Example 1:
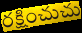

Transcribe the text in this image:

రక్షించుచు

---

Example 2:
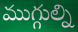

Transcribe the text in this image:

ముగ్గుల్ని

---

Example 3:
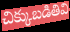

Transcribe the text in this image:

చిక్కుబడితివి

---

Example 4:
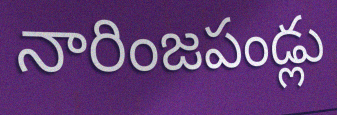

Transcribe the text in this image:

నారింజపండ్లు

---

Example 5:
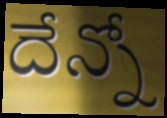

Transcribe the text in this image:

దేన్నో